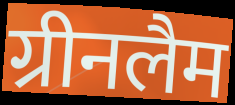
ग्रीनलैम